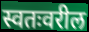
स्वतःवरील